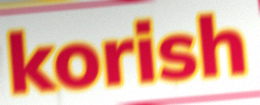
korish